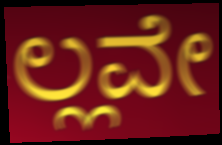
ಲ್ಲವೇ